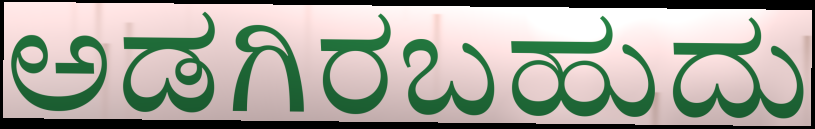
ಅಡಗಿರಬಹುದು